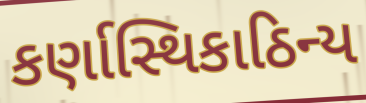
કર્ણાસ્થિકાઠિન્ય